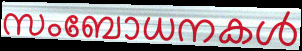
സംബോധനകൾ